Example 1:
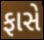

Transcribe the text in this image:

ફાસે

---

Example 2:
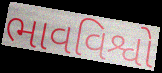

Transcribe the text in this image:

ભાવવિશ્વો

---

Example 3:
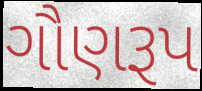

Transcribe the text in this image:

ગૌણરૂપ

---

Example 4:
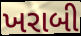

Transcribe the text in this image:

ખરાબી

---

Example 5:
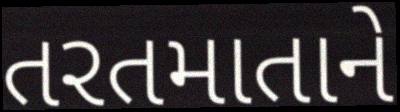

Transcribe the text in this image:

તરતમાતાને